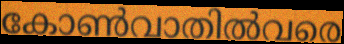
കോൺവാതിൽവരെ